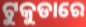
ଟୁକୁଡାରେ